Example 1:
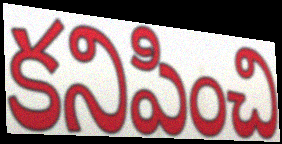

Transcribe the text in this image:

కనిపించి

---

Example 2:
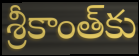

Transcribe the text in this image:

శ్రీకాంత్‌కు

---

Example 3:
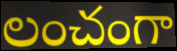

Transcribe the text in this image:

లంచంగా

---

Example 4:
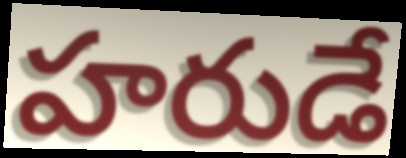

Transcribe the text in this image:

హరుడే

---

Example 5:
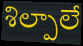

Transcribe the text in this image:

శిల్పాలే